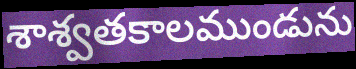
శాశ్వతకాలముండును